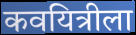
कवयित्रीला